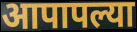
आपापल्या